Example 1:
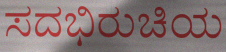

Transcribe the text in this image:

ಸದಭಿರುಚಿಯ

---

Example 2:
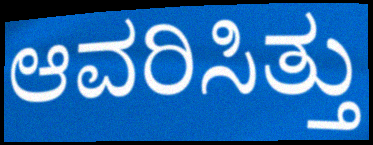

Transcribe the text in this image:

ಆವರಿಸಿತ್ತು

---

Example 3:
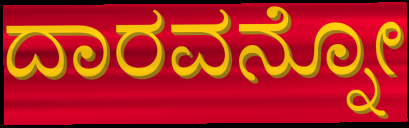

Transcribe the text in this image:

ದಾರವನ್ನೋ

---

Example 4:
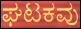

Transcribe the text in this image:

ಘಟಕವು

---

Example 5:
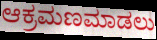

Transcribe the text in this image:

ಆಕ್ರಮಣಮಾಡಲು